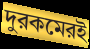
দুরকমেরই